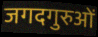
जगदगुरुओं